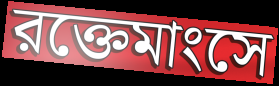
রক্তেমাংসে